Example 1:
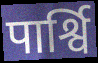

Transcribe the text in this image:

पार्श्वि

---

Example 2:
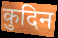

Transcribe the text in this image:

कुदिन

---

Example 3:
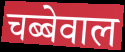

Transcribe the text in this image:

चब्बेवाल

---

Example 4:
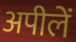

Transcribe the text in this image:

अपीलें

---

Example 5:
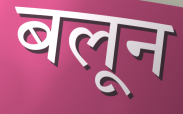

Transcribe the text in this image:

बलून